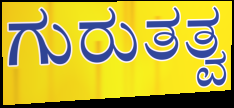
ಗುರುತತ್ವ